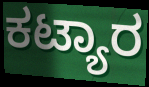
ಕಟ್ಯಾರ